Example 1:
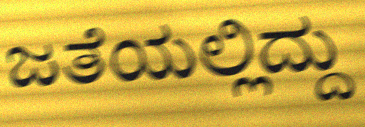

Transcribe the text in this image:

ಜತೆಯಲ್ಲಿದ್ದು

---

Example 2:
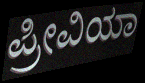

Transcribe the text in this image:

ಪ್ರೀವಿಯಾ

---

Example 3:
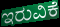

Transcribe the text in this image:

ಇರುವಿಕೆ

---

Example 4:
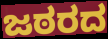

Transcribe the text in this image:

ಜಠರದ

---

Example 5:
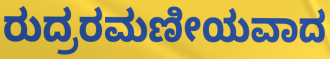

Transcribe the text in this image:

ರುದ್ರರಮಣೀಯವಾದ